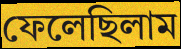
ফেলেছিলাম